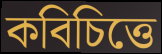
কবিচিত্তে